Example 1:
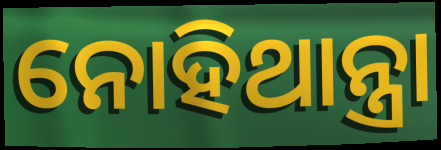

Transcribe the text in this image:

ନୋହିଥାନ୍ତ୍ରା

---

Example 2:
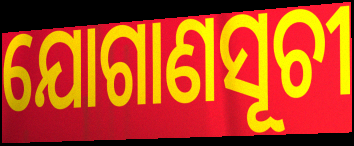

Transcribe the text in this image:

ଯୋଗାଣସୂଚୀ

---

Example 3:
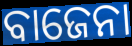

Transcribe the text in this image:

ବାଜେନା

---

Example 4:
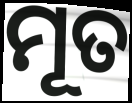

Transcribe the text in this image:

ମୂତ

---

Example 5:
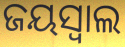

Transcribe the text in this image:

ଜୟସ୍ୱାଲ